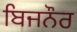
ਬਿਜਨੌਰ